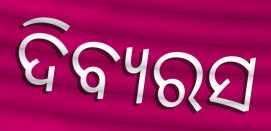
ଦିବ୍ୟରସ